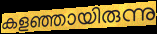
കളഞ്ഞായിരുന്നു